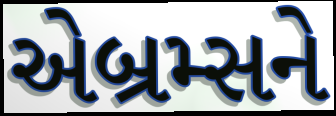
એબ્રમ્સને